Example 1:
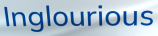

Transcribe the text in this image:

Inglourious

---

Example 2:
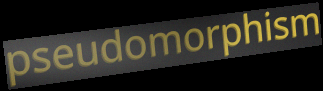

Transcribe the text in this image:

pseudomorphism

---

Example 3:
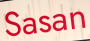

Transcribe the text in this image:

Sasan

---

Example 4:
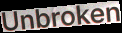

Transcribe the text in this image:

Unbroken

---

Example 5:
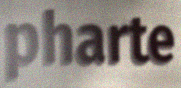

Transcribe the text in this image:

pharte